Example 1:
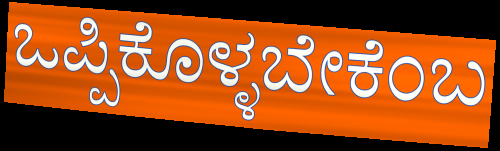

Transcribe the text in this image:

ಒಪ್ಪಿಕೊಳ್ಳಬೇಕೆಂಬ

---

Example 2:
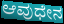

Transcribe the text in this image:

ಆವುಧೇನ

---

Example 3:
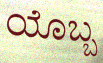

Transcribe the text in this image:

ಯೊಬ್ಬ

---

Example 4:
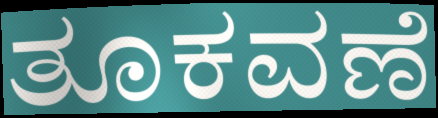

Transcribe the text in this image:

ತೂಕವಣೆ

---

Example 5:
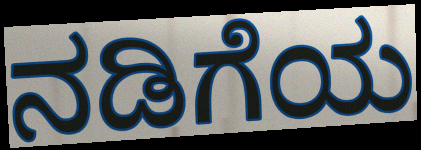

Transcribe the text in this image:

ನಡಿಗೆಯ